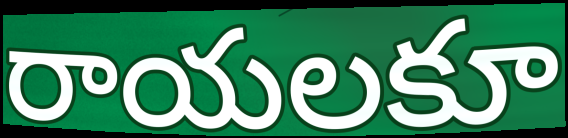
రాయలకూ